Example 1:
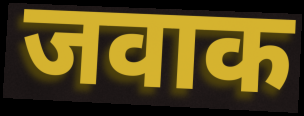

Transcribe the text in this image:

जवाक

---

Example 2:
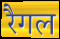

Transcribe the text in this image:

रैगल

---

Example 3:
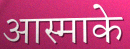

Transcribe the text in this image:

आस्माके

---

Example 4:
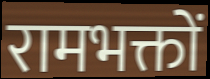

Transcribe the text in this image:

रामभक्तों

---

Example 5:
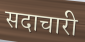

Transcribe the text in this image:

सदाचारी